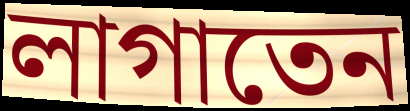
লাগাতেন